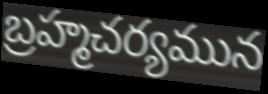
బ్రహ్మచర్యమున